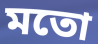
মতো